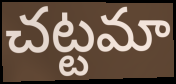
చట్టమా